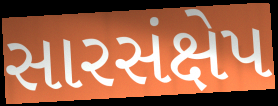
સારસંક્ષેપ